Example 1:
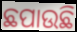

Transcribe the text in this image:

ଛପାଉଛି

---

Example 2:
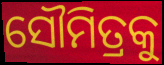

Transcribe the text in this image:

ସୌମିତ୍ରକୁ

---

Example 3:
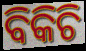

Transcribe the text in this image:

ବିକିଚି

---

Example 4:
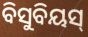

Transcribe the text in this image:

ବିସୁବିୟସ୍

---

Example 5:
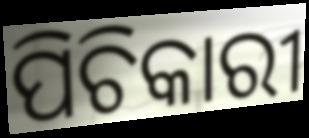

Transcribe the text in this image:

ପିଚିକାରୀ